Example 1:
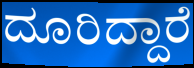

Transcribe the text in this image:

ದೂರಿದ್ದಾರೆ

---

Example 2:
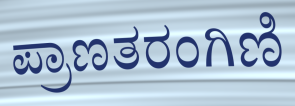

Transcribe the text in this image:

ಪ್ರಾಣತರಂಗಿಣಿ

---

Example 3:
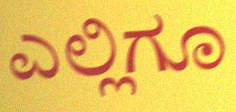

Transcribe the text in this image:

ಎಲ್ಲಿಗೂ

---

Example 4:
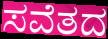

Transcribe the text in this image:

ಸವೆತದ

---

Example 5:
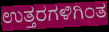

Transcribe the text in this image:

ಉತ್ತರಗಳಿಗಿಂತ